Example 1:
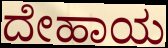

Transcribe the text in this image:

ದೇಹಾಯ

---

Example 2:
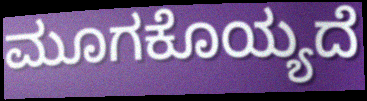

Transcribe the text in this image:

ಮೂಗಕೊಯ್ಯದೆ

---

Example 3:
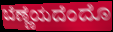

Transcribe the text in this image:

ಬೆಣ್ಣೆಯದೆಂದೊ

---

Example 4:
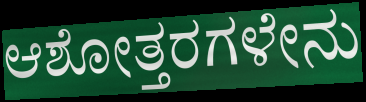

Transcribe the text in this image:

ಆಶೋತ್ತರಗಳೇನು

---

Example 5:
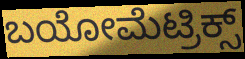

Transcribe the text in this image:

ಬಯೋಮೆಟ್ರಿಕ್ಸ್